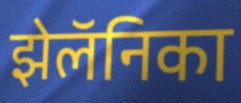
झेलॅनिका